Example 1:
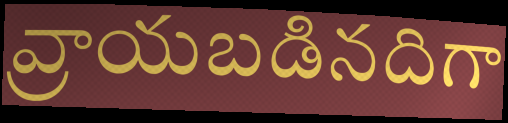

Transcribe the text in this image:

వ్రాయబడినదిగా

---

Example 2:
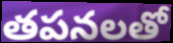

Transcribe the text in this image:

తపనలతో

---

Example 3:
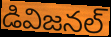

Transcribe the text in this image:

డివిజనల్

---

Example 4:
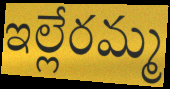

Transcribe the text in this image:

ఇల్లేరమ్మ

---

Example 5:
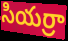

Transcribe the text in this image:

సియర్రా